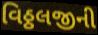
વિઠ્ઠલજીની